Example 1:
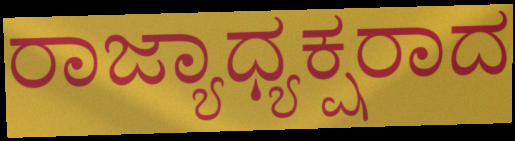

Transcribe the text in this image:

ರಾಜ್ಯಾಧ್ಯಕ್ಷರಾದ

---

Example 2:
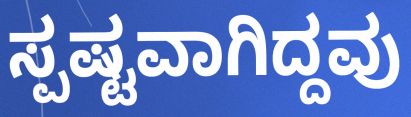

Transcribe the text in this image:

ಸ್ಪಷ್ಟವಾಗಿದ್ದವು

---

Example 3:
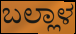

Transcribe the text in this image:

ಬಲ್ಲಾಳ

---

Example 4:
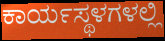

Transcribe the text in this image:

ಕಾರ್ಯಸ್ಥಳಗಳಲ್ಲಿ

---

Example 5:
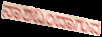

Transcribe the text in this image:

ನಾಶದಿಂದಾಗುವ